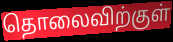
தொலைவிற்குள்